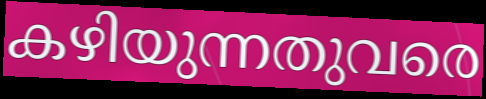
കഴിയുന്നതുവരെ